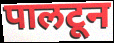
पालटून